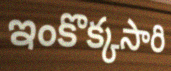
ఇంకొక్కసారి